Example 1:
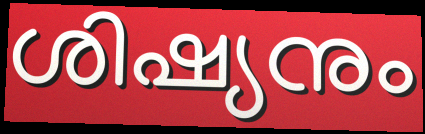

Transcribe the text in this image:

ശിഷ്യനും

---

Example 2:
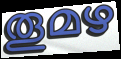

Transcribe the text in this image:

തൂമഴ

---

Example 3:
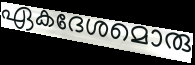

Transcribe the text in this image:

ഏകദേശമൊരു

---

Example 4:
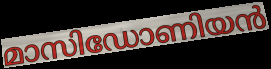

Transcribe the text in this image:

മാസിഡോണിയൻ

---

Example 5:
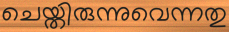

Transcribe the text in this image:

ചെയ്തിരുന്നുവെന്നതു